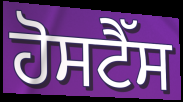
ਹੋਸਟੈੱਸ